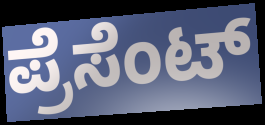
ಪ್ರೆಸೆಂಟ್